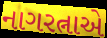
નાગરત્નાએ